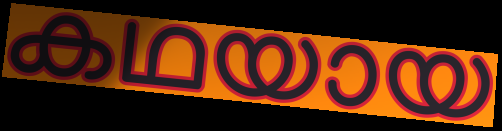
കഥയായ